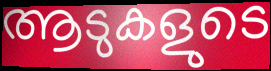
ആടുകളുടെ